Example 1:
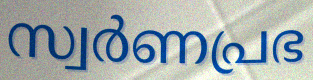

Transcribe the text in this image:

സ്വർണപ്രഭ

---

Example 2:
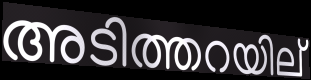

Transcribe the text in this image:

അടിത്തറയില്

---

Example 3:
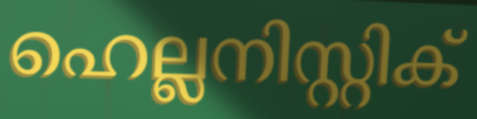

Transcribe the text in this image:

ഹെല്ലനിസ്റ്റിക്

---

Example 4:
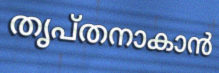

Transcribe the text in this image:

തൃപ്തനാകാൻ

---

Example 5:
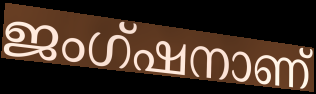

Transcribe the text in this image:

ജംഗ്ഷനാണ്